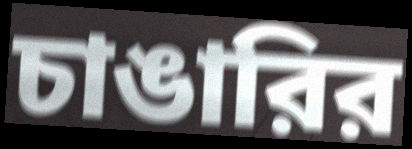
চাঙারির